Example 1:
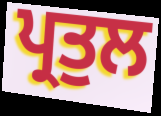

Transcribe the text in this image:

ਪ੍ਰਤੁਲ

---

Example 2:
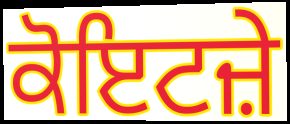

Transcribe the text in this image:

ਕੋਇਟਜ਼ੇ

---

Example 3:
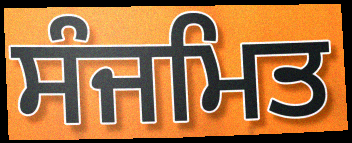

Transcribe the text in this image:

ਸੰਜਮਿਤ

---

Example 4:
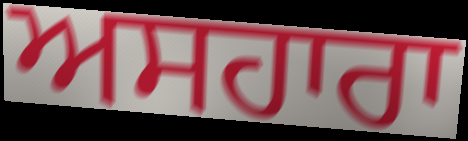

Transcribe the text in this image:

ਅਸਹਾਰਾ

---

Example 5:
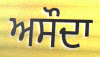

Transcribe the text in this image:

ਅਸੌਦਾ